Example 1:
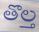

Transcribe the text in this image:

తొల్త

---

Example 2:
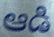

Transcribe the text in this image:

ఆడి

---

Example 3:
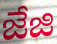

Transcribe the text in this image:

జేజి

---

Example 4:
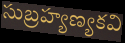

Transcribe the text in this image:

సుబ్రహ్యణ్యకవి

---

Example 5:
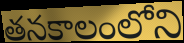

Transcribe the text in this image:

తనకాలంలోని